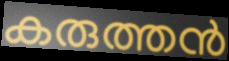
കരുത്തൻ